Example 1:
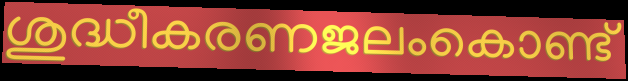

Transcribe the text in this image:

ശുദ്ധീകരണജലംകൊണ്ട്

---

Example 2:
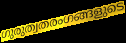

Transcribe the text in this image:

ഗുരുത്വതരംഗങ്ങളുടെ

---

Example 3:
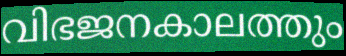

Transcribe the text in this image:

വിഭജനകാലത്തും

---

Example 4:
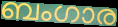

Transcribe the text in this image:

ബംഗാര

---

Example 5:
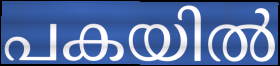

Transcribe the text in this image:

പകയിൽ